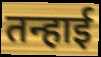
तन्हाई